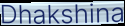
Dhakshina